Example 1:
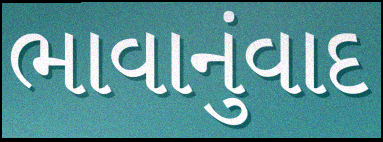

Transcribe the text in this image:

ભાવાનુંવાદ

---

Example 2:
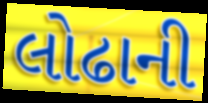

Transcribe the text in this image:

લોઢાની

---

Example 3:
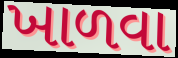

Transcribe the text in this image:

ખાળવા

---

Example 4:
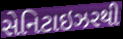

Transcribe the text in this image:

સેનિટાઇઝરથી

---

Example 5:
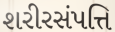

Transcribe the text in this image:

શરીરસંપત્તિ